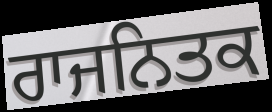
ਰਾਜਨਿਤਕ